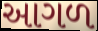
આગળ